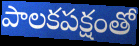
పాలకపక్షంతో